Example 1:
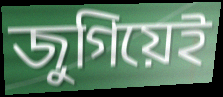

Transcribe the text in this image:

জুগিয়েই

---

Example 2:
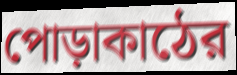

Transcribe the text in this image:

পোড়াকাঠের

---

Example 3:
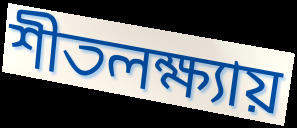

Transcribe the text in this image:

শীতলক্ষ্যায়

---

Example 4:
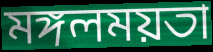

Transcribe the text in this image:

মঙ্গলময়তা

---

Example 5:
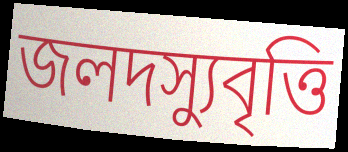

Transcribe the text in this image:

জলদস্যুবৃত্তি